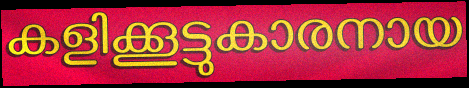
കളിക്കൂട്ടുകാരനായ